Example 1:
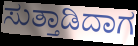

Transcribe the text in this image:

ಸುತ್ತಾಡಿದಾಗ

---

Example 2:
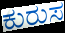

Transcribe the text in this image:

ಕುರುಸ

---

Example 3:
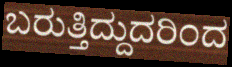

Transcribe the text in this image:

ಬರುತ್ತಿದ್ದುದರಿಂದ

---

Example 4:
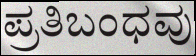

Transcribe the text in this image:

ಪ್ರತಿಬಂಧವು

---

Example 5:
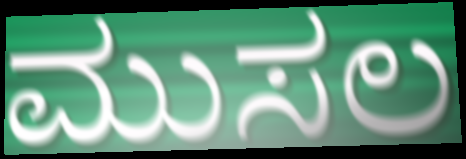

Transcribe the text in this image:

ಮುಸಲ